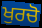
ਖੁਰਚੋ